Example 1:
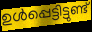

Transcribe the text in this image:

ഉൾപ്പെട്ടിട്ടുണ്ട്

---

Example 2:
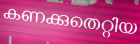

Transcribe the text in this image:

കണക്കുതെറ്റിയ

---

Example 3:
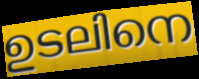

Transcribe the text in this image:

ഉടലിനെ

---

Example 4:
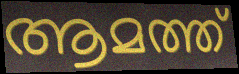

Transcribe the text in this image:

ആമത്ത്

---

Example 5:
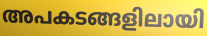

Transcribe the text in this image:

അപകടങ്ങളിലായി